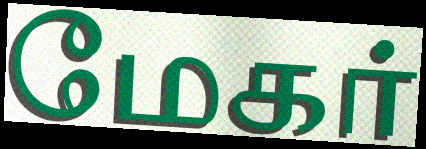
மேகர்